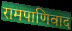
रामपाणिवाद